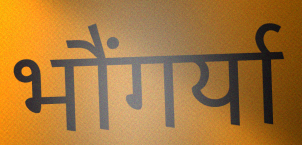
भौंगर्या